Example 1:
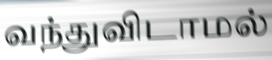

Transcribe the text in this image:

வந்துவிடாமல்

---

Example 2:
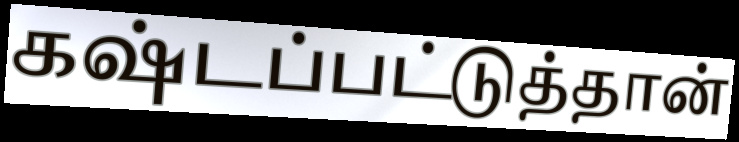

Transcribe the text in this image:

கஷ்டப்பட்டுத்தான்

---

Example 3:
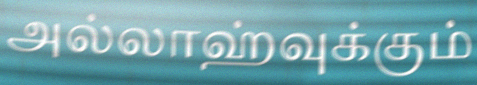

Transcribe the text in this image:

அல்லாஹ்வுக்கும்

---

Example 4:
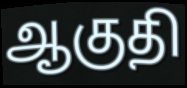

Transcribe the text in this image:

ஆகுதி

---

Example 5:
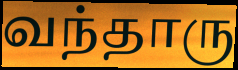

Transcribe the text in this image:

வந்தாரு